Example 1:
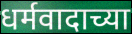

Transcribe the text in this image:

धर्मवादाच्या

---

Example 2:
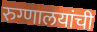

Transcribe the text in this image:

रुग्णालयांची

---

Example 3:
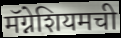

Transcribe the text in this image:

मॅग्नेशियमची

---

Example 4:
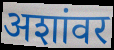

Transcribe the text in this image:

अशांवर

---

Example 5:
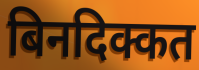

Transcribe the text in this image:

बिनदिक्कत